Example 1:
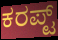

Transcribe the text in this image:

ಕರಪ್ಟ್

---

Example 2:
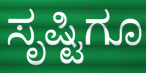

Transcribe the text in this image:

ಸೃಷ್ಟಿಗೂ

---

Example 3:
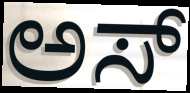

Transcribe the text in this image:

ಅಸ್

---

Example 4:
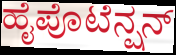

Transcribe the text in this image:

ಹೈಪೊಟೆನ್ಷನ್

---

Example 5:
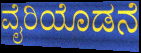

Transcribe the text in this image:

ವೈರಿಯೊಡನೆ